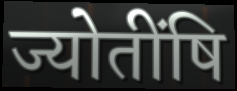
ज्योतींषि